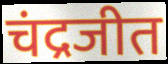
चंद्रजीत